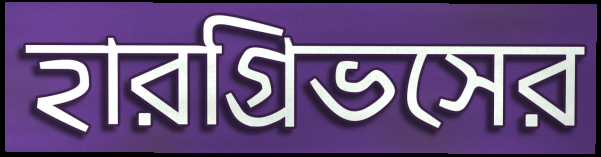
হারগ্রিভসের